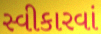
સ્વીકારવાં